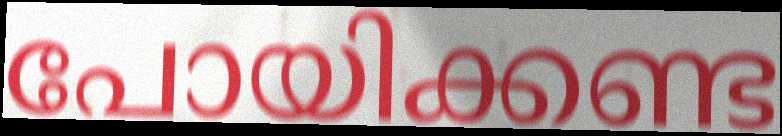
പോയിക്കണ്ട